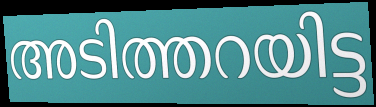
അടിത്തറയിട്ട